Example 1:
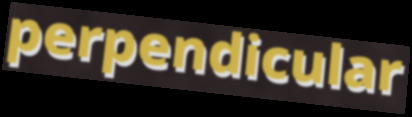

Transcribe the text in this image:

perpendicular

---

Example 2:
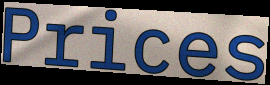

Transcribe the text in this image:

Prices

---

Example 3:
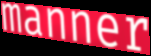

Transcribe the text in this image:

manner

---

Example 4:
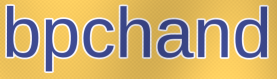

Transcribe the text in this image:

bpchand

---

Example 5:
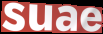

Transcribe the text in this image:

suae